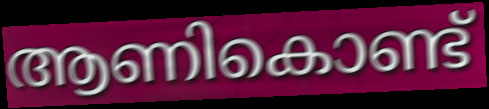
ആണികൊണ്ട്